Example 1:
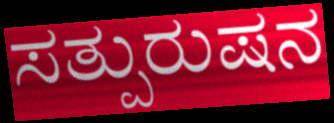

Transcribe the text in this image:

ಸತ್ಪುರುಷನ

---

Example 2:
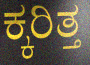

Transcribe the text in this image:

ಕ್ಕರಿತ್ತ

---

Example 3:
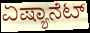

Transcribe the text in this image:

ಏಷ್ಯಾನೆಟ್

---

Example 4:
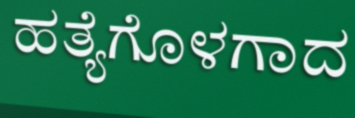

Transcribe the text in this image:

ಹತ್ಯೆಗೊಳಗಾದ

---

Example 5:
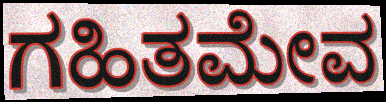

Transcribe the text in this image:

ಗಹಿತಮೇವ